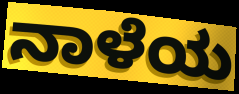
ನಾಳೆಯ